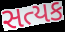
સત્યક